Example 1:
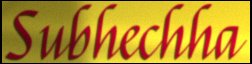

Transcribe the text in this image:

Subhechha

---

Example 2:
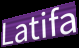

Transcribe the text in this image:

Latifa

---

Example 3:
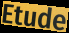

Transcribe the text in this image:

Etude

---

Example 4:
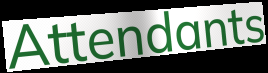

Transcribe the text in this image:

Attendants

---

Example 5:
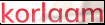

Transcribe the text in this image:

korlaam